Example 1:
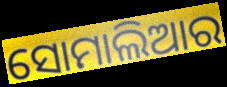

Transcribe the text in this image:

ସୋମାଲିଆର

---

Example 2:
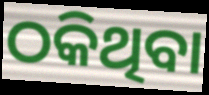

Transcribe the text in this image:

ଠକିଥିବା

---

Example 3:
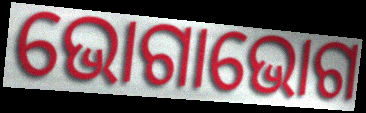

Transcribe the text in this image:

ଭୋଗାଭୋଗ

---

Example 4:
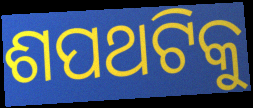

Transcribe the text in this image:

ଶପଥଟିକୁ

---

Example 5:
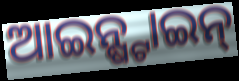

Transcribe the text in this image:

ଆଇନ୍ଷ୍ଟାଇନ୍